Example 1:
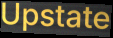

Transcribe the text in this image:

Upstate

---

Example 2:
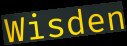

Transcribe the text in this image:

Wisden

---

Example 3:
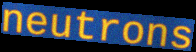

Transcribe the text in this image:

neutrons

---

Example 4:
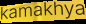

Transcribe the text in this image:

kamakhya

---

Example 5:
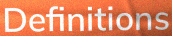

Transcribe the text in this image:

Definitions